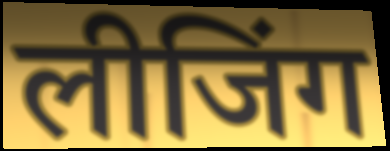
लीजिंग